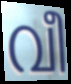
വീ